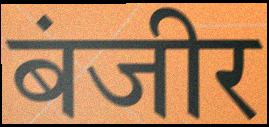
बंजीर